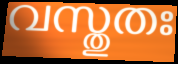
വസ്തുതഃ